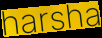
harsha